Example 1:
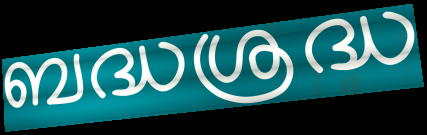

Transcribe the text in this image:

ബദ്ധശ്രദ്ധ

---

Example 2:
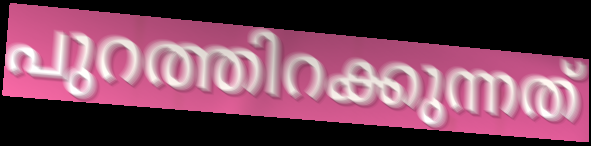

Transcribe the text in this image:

പുറത്തിറക്കുന്നത്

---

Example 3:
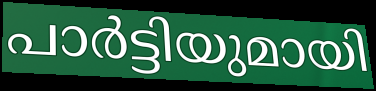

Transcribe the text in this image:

പാർട്ടിയുമായി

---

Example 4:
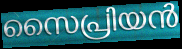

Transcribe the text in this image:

സൈപ്രിയൻ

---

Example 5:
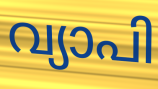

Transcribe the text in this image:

വ്യാപി